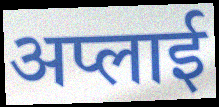
अप्लाई